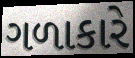
ગળાકારે